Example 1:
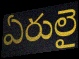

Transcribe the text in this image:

ఏరులై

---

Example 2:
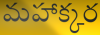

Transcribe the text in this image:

మహాక్కర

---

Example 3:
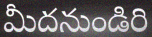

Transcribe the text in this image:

మీదనుండిరి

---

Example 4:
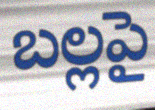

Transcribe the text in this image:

బల్లపై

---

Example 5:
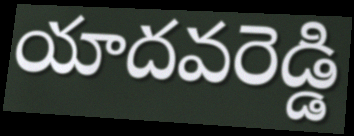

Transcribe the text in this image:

యాదవరెడ్డి